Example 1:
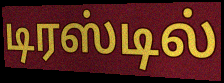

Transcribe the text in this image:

டிரஸ்டில்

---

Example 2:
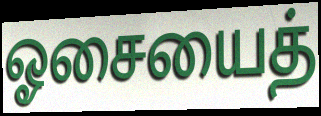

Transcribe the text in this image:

ஓசையைத்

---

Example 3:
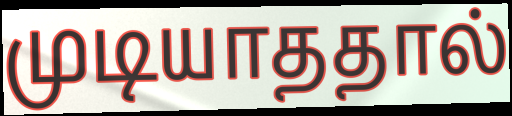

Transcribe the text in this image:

முடியாததால்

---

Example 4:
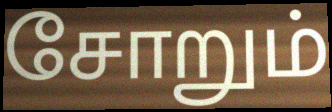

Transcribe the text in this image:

சோறும்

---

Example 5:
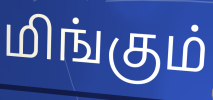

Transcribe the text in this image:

மிங்கும்